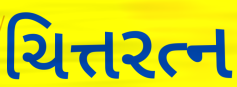
ચિત્તરત્ન